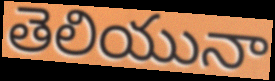
తెలియునా